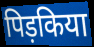
पिड़किया